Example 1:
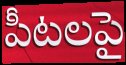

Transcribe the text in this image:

పీటలపై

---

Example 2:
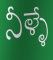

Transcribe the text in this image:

నీళ్ళే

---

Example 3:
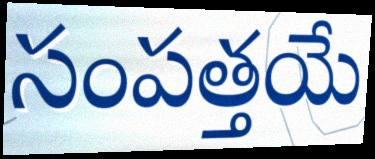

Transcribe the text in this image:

సంపత్తయే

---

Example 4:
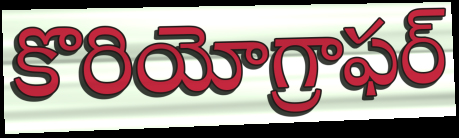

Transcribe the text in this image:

కొరియోగ్రాఫర్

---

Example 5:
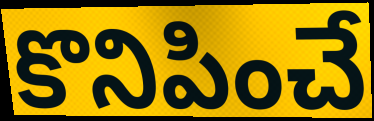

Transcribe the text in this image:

కొనిపించే